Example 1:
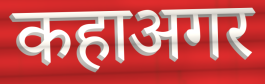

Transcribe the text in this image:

कहाअगर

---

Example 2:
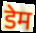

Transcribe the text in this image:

डेम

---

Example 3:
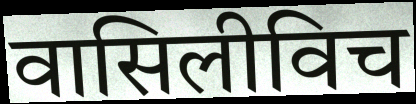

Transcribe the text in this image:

वासिलीविच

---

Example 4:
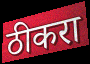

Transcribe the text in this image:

ठीकरा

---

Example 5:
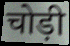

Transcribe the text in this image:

चोड़ी